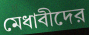
মেধাবীদের